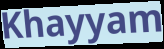
Khayyam